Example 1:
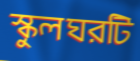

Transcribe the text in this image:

স্কুলঘরটি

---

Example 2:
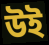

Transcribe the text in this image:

উই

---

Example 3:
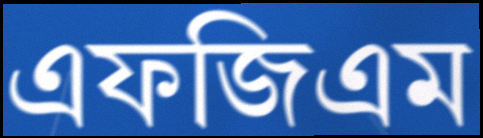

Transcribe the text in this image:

এফজিএম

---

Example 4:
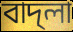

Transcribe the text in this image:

বাদ্‌লা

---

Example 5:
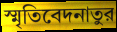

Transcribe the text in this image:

স্মৃতিবেদনাতুর